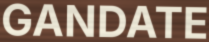
GANDATE